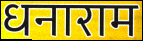
धनाराम